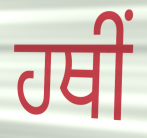
ਹਥੀਂ